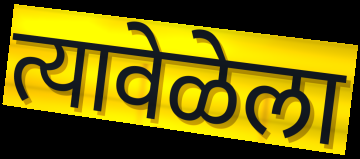
त्यावेळेला